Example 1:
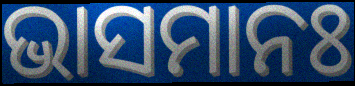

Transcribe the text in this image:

ଭାସମାନଃ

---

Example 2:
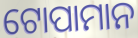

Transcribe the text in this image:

ଟୋପାମାନ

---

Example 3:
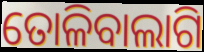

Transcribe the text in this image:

ତୋଳିବାଲାଗି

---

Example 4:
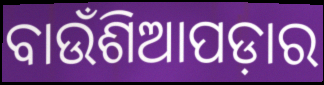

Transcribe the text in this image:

ବାଉଁଶିଆପଡ଼ାର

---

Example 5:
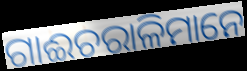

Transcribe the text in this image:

ଗାଈଚରାଳିମାନେ